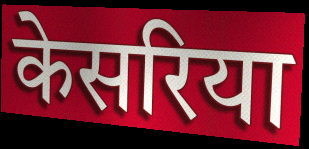
केसरिया